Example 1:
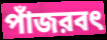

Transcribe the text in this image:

পাঁজরবৎ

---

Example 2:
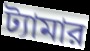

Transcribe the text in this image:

ট্যামার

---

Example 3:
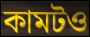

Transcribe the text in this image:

কামটও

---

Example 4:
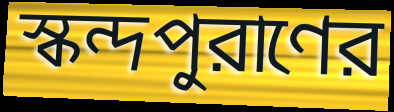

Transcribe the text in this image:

স্কন্দপুরাণের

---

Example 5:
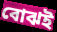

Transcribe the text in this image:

বোঝই